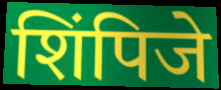
शिंपिजे